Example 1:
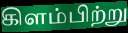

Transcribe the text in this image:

கிளம்பிற்று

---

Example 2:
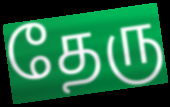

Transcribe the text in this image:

தேரு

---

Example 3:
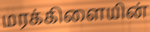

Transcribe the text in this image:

மரக்கிளையின்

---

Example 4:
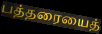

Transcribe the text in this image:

பத்தரையைத்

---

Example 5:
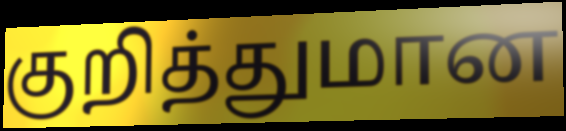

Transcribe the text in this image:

குறித்துமான